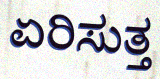
ಏರಿಸುತ್ತ